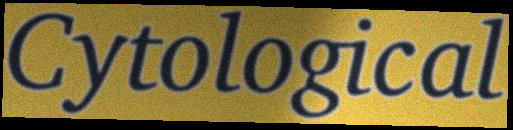
Cytological